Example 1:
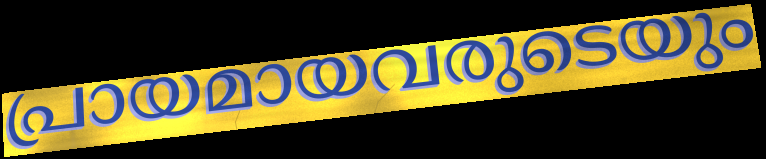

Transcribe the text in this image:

പ്രായമായവരുടെയും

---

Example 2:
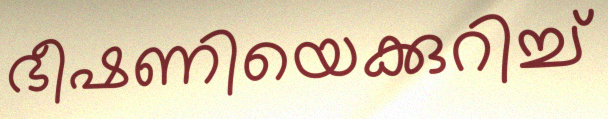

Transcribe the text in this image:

ഭീഷണിയെക്കുറിച്ച്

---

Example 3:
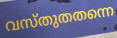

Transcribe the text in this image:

വസ്തുതതന്നെ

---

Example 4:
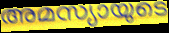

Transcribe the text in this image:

അമസ്യായുടെ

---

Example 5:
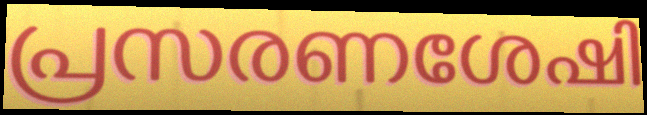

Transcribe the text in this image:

പ്രസരണശേഷി